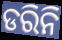
ଡରିନି